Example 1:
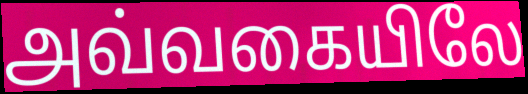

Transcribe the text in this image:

அவ்வகையிலே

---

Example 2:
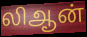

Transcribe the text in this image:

லிஆன்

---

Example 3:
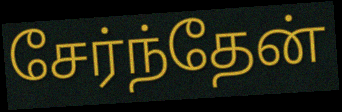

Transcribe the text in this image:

சேர்ந்தேன்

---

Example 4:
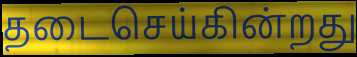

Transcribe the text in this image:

தடைசெய்கின்றது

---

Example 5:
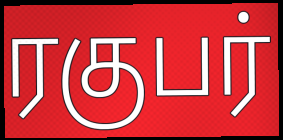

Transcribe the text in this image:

ரகுபர்